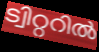
ട്വിറ്ററിൽ